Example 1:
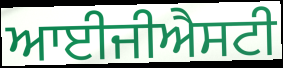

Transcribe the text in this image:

ਆਈਜੀਐਸਟੀ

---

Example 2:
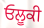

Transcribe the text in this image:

ਓਲੂਕੀ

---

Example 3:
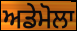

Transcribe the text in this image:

ਅਡੇਮੋਲਾ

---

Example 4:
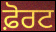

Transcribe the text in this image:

ਫ਼ੋਰਟ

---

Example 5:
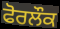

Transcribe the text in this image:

ਫੋਰਲੌਕ